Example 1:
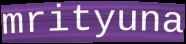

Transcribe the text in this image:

mrityuna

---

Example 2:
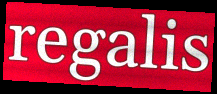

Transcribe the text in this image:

regalis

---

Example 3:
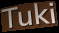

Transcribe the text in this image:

Tuki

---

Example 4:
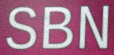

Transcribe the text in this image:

SBN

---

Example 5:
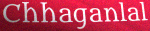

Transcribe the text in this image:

Chhaganlal